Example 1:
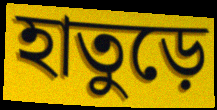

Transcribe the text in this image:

হাতুড়ে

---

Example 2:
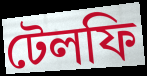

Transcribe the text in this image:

টেলফি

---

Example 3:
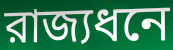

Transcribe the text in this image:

রাজ্যধনে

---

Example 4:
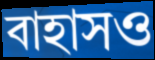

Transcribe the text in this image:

বাহাসও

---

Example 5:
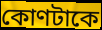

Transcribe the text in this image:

কোণটাকে